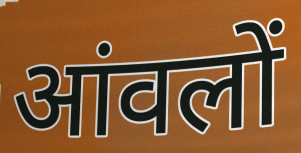
आंवलों